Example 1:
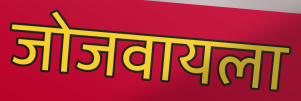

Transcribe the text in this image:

जोजवायला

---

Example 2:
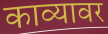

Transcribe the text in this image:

काव्यावर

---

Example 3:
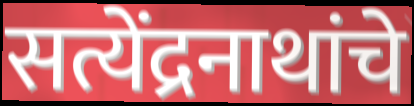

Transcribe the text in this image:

सत्येंद्रनाथांचे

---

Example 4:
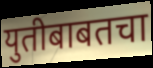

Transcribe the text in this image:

युतीबाबतचा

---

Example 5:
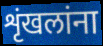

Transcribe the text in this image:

शृंखलांना